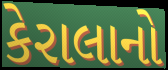
કેરાલાનો